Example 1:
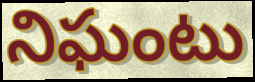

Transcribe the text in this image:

నిఘంటు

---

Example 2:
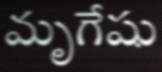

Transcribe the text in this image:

మృగేషు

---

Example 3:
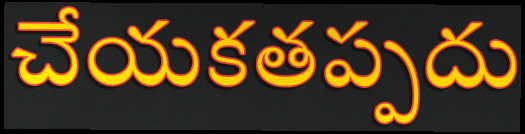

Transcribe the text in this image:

చేయకతప్పదు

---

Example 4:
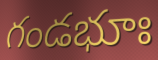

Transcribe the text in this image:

గండభూః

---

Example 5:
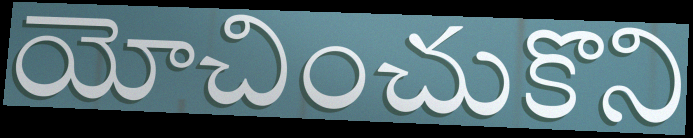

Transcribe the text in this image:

యోచించుకొని